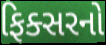
ફિક્સરનો